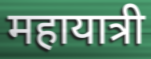
महायात्री